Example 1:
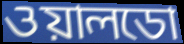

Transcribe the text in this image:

ওয়ালডো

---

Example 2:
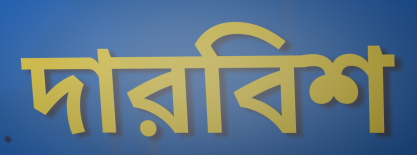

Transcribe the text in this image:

দারবিশ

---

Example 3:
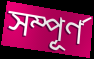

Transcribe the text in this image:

সম্পূর্ণ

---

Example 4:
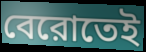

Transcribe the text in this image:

বেরোতেই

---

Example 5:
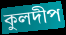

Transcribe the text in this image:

কুলদীপ